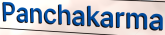
Panchakarma